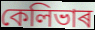
কেলিভাৰ